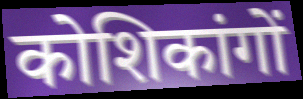
कोशिकांगों